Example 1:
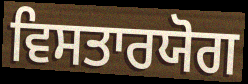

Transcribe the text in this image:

ਵਿਸਤਾਰਯੋਗ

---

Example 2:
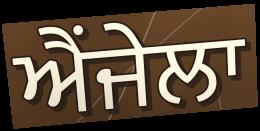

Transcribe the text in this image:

ਐਂਜੇਲਾ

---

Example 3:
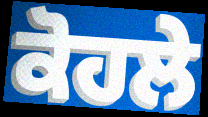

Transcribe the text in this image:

ਕੋਹਲੇ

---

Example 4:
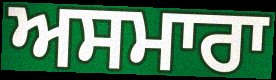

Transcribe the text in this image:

ਅਸਮਾਰਾ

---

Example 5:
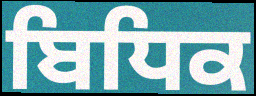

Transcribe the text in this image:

ਬਿਧਿਕ